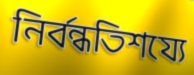
নির্বন্ধতিশয্যে